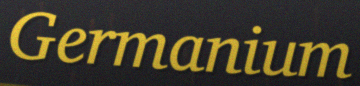
Germanium